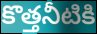
కొత్తనీటికి